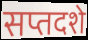
सप्तदशे